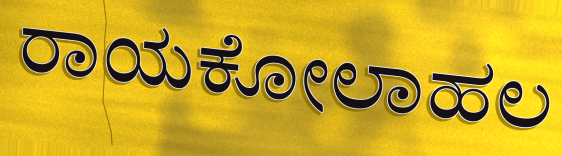
ರಾಯಕೋಲಾಹಲ